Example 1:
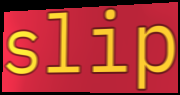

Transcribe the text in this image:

slip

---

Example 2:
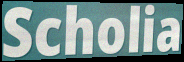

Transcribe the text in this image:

Scholia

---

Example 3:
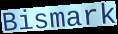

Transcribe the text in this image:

Bismark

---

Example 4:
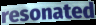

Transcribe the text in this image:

resonated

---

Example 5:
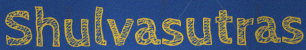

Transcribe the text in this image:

Shulvasutras